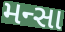
મન્સા